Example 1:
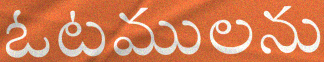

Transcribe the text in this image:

ఓటములను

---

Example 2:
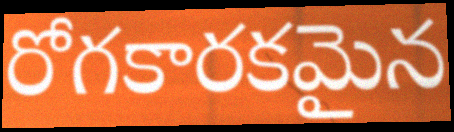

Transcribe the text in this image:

రోగకారకమైన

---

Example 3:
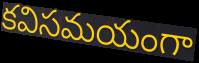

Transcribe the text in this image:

కవిసమయంగా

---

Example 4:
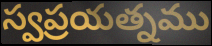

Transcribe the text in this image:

స్వప్రయత్నము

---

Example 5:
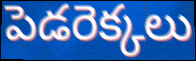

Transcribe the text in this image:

పెడరెక్కలు